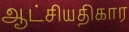
ஆட்சியதிகார